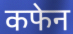
कफेन